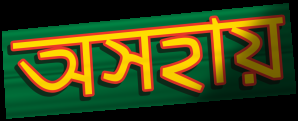
অসহায়